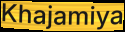
Khajamiya